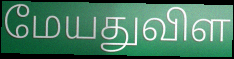
மேயதுவிள